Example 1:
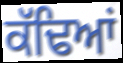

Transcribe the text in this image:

ਕੱਢਿਆਂ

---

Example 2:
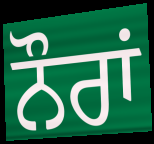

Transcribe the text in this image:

ਨੌਰਾਂ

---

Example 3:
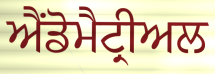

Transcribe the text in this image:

ਐਂਡੋਮੈਟ੍ਰੀਅਲ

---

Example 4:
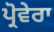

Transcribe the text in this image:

ਪ੍ਰੋਵੇਰਾ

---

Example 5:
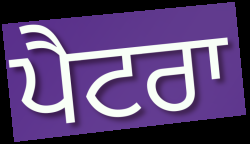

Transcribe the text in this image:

ਪੈਟਰਾ